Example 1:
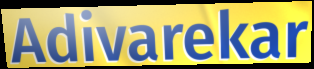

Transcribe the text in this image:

Adivarekar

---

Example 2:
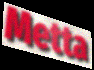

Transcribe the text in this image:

Metta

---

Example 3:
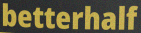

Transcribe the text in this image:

betterhalf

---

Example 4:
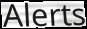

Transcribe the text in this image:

Alerts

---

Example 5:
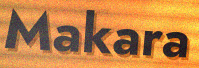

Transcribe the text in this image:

Makara